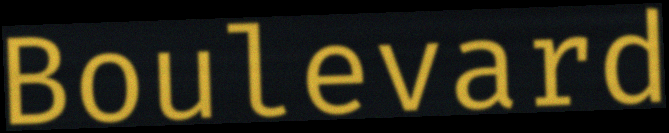
Boulevard